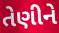
તેણીને